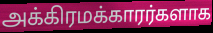
அக்கிரமக்காரர்களாக